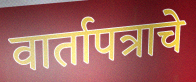
वार्तापत्राचे